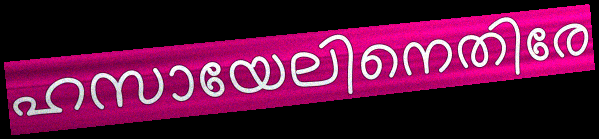
ഹസായേലിനെതിരേ